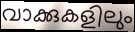
വാക്കുകളിലും